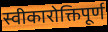
स्वीकारोक्तिपूर्ण